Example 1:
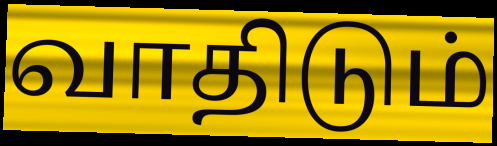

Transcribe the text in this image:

வாதிடும்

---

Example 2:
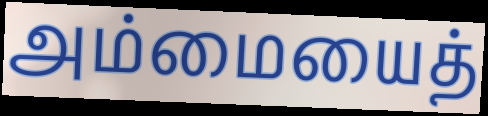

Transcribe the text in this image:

அம்மையைத்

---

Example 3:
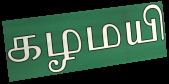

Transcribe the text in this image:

கழமயி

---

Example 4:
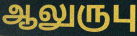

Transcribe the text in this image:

ஆலுருபு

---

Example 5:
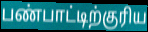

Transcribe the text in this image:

பண்பாட்டிற்குரிய